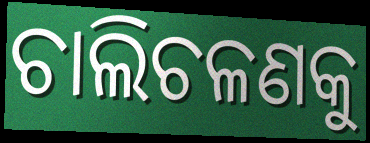
ଚାଲିଚଳଣକୁ